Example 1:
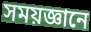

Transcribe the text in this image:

সময়জ্ঞানে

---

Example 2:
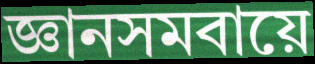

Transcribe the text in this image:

জ্ঞানসমবায়ে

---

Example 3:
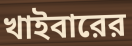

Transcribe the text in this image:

খাইবারের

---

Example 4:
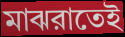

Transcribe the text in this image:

মাঝরাতেই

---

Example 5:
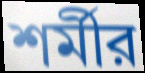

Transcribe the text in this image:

শর্মীর